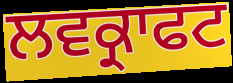
ਲਵਕ੍ਰਾਫਟ